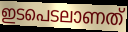
ഇടപെടലാണത്